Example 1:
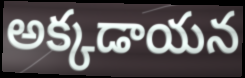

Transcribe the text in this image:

అక్కడాయన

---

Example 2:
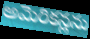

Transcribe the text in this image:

అమెరికన్లను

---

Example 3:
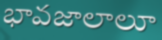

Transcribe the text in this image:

భావజాలాలూ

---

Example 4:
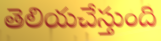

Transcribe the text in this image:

తెలియచేస్తుంది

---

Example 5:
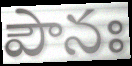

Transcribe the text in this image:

పౌనః